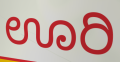
ಊರಿ